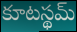
కూటస్థమ్